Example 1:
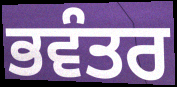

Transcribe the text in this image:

ਭਵੰਤਰ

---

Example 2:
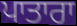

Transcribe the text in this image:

ਪਾਤਾਰਾ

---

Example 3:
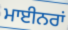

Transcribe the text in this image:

ਮਾਈਨਰਾਂ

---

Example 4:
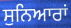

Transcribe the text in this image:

ਸੁਨਿਆਰਾਂ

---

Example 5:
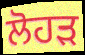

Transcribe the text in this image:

ਲੋਹੜ